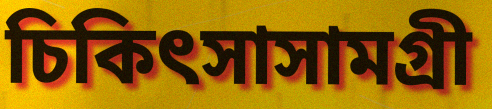
চিকিৎসাসামগ্রী